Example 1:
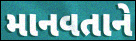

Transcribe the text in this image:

માનવતાને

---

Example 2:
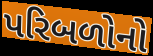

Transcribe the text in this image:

પરિબળોનો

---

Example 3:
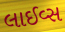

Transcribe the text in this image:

લાઈવ્સ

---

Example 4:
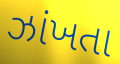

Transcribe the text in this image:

ઝાંખતા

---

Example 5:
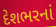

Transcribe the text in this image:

દેશભરનાં